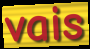
vais